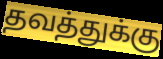
தவத்துக்கு